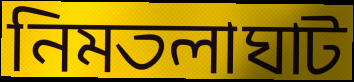
নিমতলাঘাট